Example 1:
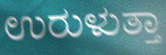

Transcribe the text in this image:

ಉರುಳುತ್ತಾ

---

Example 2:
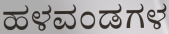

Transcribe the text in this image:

ಹಳವಂಡಗಳ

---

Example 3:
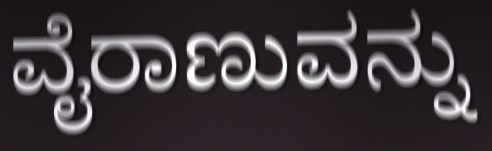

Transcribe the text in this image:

ವೈರಾಣುವನ್ನು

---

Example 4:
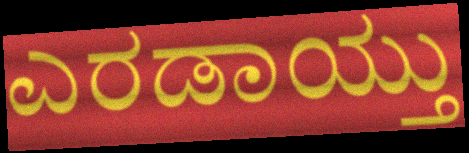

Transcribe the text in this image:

ಎರಡಾಯ್ತು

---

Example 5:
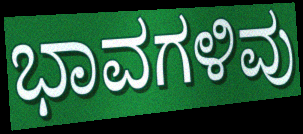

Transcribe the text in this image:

ಭಾವಗಳಿವು